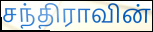
சந்திராவின்